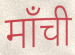
माँची